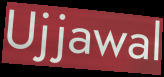
Ujjawal